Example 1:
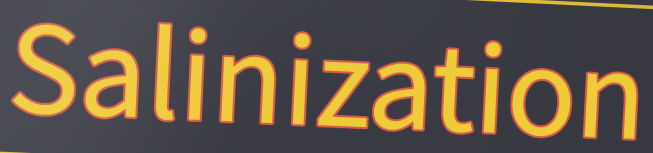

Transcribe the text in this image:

Salinization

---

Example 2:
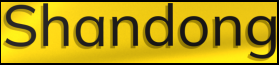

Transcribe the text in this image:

Shandong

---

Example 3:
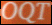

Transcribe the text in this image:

OQT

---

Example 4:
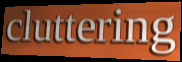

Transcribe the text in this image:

cluttering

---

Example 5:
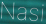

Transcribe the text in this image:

Nasi